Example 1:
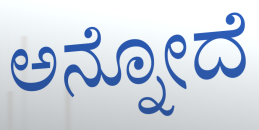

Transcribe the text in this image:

ಅನ್ನೋದೆ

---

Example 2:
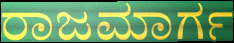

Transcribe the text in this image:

ರಾಜಮಾರ್ಗ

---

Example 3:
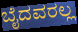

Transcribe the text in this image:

ಬೈದವರಲ್ಲ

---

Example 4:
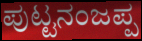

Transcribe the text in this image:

ಪುಟ್ಟನಂಜಪ್ಪ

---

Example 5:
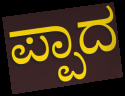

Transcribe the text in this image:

ಪ್ಪಾದ